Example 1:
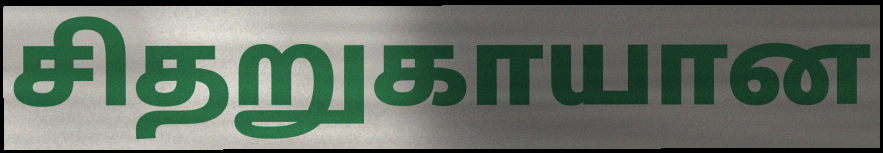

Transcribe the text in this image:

சிதறுகாயான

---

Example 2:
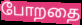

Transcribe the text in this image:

போறதை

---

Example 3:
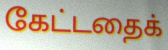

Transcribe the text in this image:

கேட்டதைக்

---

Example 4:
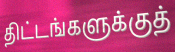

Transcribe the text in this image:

திட்டங்களுக்குத்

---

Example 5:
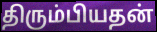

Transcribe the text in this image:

திரும்பியதன்